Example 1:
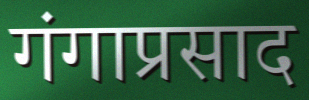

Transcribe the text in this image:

गंगाप्रसाद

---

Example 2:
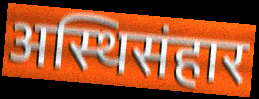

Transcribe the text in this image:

अस्थिसंहार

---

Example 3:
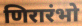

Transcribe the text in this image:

णिरारंभो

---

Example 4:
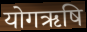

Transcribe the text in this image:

योगऋषि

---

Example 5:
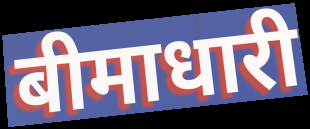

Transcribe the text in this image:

बीमाधारी